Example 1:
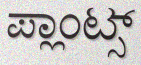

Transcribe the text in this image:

ಪ್ಲಾಂಟ್ಸ್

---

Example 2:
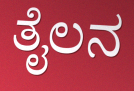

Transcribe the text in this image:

ತೈಲನ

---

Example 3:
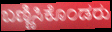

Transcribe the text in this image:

ಬಣ್ಣಿಸಿಕೊಂಡರು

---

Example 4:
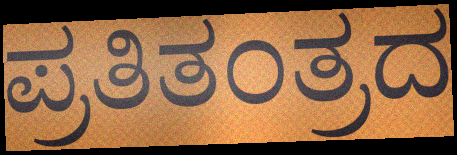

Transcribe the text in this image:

ಪ್ರತಿತಂತ್ರದ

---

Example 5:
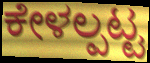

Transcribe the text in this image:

ಕೇಳಲ್ಪಟ್ಟ